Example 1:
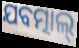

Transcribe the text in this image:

ଯବତ୍ମାଲ୍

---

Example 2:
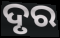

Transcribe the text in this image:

ଦୃର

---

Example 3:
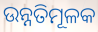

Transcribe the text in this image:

ଉନ୍ନତିମୂଳକ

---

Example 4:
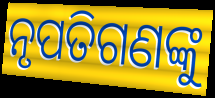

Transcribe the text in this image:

ନୃପତିଗଣଙ୍କୁ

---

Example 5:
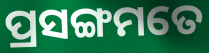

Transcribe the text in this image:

ପ୍ରସଙ୍ଗମତେ